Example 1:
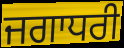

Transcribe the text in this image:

ਜਗਾਧਰੀ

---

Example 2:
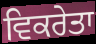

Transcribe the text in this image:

ਵਿਕਰੇਤਾ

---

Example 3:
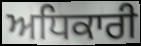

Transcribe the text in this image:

ਅਧਿਕਾਰੀ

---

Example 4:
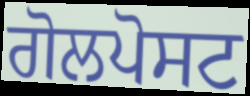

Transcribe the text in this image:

ਗੋਲਪੋਸਟ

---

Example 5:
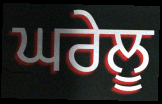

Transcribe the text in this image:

ਘਰੇਲੂ